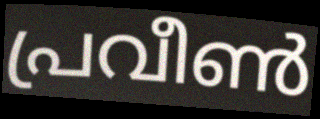
പ്രവീൺ